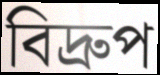
বিদ্রুপ